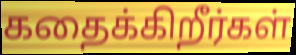
கதைக்கிறீர்கள்